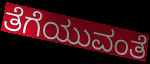
ತೆಗೆಯುವಂತೆ